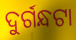
ଦୁର୍ଗନ୍ଧଟା